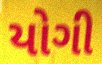
યોગી